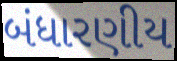
બંધારણીય